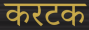
करटक